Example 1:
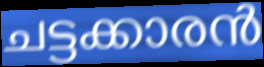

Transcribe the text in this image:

ചട്ടക്കാരൻ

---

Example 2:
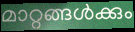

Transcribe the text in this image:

മാറ്റങ്ങൾക്കും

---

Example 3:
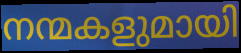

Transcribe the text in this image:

നന്മകളുമായി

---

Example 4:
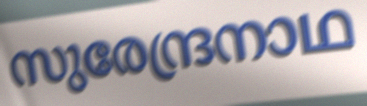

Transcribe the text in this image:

സുരേന്ദ്രനാഥ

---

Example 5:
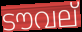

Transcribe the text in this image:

ടൗവല്